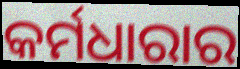
କର୍ମଧାରାର